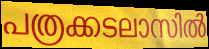
പത്രക്കടലാസിൽ